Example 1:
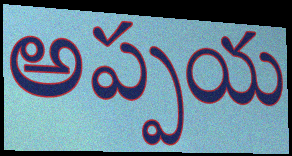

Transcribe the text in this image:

అప్పయ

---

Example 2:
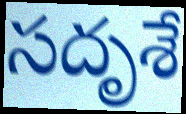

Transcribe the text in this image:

సదృశే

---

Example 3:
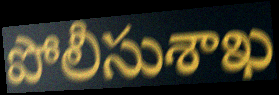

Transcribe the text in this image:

పోలీసుశాఖ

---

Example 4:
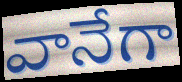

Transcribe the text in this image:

వానేగా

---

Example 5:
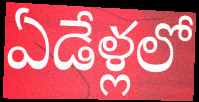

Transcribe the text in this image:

ఏడేళ్లలో